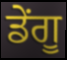
ਡੇਂਗੂ